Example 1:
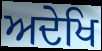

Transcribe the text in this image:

ਅਦੇਖਿ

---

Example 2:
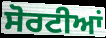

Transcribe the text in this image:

ਸੋਰਟੀਆਂ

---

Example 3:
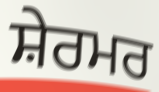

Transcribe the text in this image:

ਸ਼ੇਰਮਰ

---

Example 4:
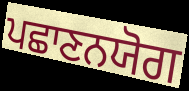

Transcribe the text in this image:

ਪਛਾਣਨਯੋਗ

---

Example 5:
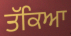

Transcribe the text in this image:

ਤੱਕਿਆ